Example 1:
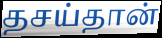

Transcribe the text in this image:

தசய்தான்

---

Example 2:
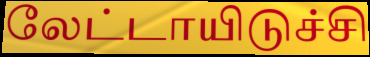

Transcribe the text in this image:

லேட்டாயிடுச்சி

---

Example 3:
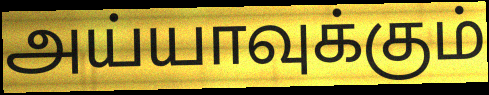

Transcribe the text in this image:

அய்யாவுக்கும்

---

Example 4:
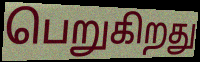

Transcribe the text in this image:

பெறுகிறது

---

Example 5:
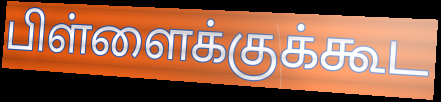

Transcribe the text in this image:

பிள்ளைக்குக்கூட